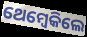
ଥେମ୍ବେକିଲେ